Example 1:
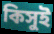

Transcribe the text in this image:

কিসুই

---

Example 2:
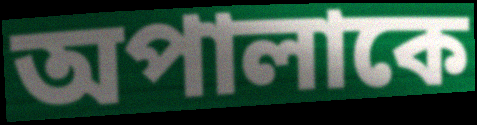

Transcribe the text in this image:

অপালাকে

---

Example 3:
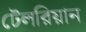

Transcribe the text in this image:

টেলরিয়ান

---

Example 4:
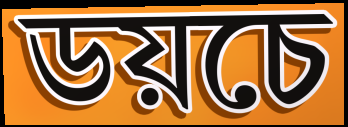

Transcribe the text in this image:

ডয়চে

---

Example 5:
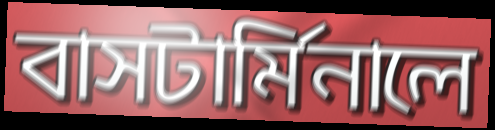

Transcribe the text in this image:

বাসটার্মিনালে